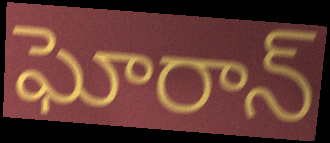
ఘోరాన్